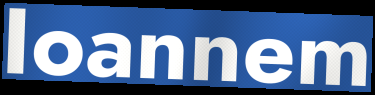
Ioannem